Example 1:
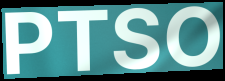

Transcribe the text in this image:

PTSO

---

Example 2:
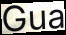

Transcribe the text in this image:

Gua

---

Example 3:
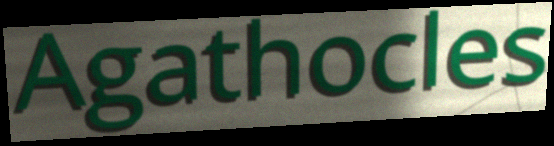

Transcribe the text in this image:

Agathocles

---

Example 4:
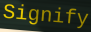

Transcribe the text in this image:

Signify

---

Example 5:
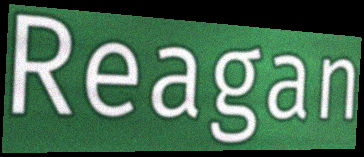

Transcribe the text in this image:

Reagan